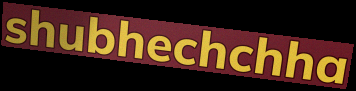
shubhechchha